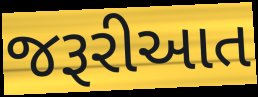
જરૂરીઆત